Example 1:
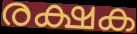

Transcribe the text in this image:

രക്ഷക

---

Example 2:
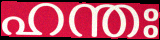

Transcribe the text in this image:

ഹന്തഃ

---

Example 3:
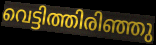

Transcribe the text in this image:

വെട്ടിത്തിരിഞ്ഞു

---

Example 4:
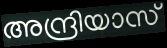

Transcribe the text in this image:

അന്ദ്രിയാസ്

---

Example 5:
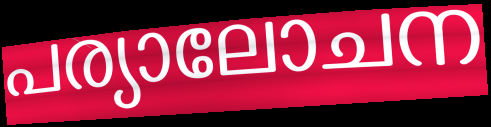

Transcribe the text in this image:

പര്യാലോചന